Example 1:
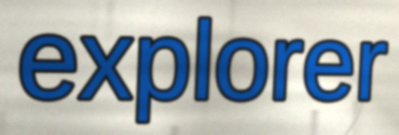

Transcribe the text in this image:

explorer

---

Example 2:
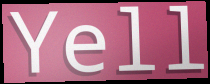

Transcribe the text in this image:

Yell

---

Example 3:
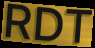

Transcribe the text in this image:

RDT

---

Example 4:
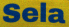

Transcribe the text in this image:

Sela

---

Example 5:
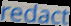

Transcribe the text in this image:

redact